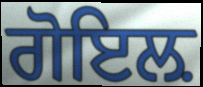
ਗੋਇਲ਼